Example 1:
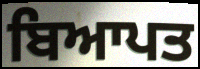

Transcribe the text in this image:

ਬਿਆਪਤ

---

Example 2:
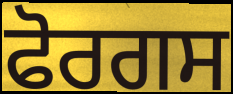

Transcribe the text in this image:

ਫੋਰਗਸ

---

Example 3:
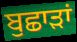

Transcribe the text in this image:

ਬੁਛਾੜਾਂ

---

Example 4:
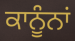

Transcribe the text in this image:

ਕਾਨੂੰਨਾਂ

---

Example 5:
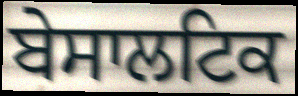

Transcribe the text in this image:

ਬੇਸਾਲਟਿਕ